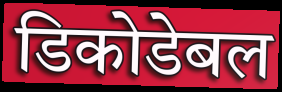
डिकोडेबल